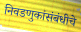
निवडणुकांसंबंधीचे